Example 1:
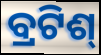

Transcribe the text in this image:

ବ୍ରଟିଶ୍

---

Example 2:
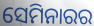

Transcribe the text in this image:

ସେମିନାରର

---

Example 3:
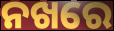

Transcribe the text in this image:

ନଖରେ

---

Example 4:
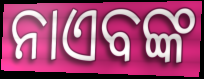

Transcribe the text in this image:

ନାଏବଙ୍କ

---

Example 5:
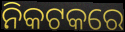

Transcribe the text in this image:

ନିକଟକରେ